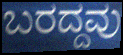
ಬರದ್ದವು